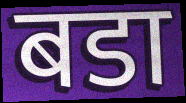
बडा